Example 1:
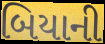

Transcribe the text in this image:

બિયાની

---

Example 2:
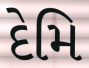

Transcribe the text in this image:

દેમિ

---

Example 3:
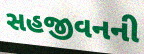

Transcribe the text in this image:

સહજીવનની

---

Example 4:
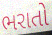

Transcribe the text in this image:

ભરાતો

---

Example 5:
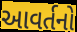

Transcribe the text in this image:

આવર્તનો